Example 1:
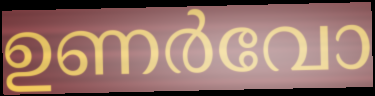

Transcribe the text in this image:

ഉണർവോ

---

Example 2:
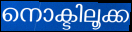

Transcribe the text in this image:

നൊക്ടിലൂക്ക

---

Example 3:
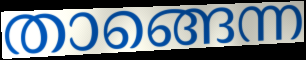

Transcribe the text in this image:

താങ്ങെന്ന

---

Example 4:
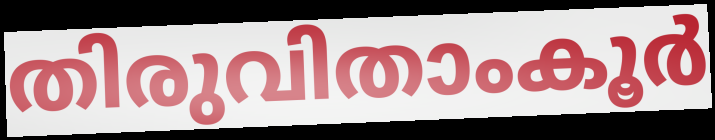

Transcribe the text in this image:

തിരുവിതാംകൂർ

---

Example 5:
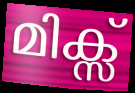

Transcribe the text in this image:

മിക്സ്